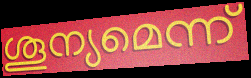
ശൂന്യമെന്ന്